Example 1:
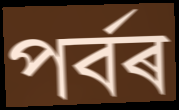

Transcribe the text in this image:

পৰ্বৰ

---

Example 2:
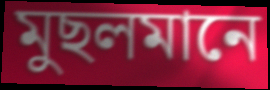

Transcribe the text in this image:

মুছলমানে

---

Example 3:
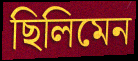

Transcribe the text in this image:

ছিলিমেন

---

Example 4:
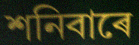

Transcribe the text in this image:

শনিবাৰে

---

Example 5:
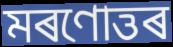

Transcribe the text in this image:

মৰণোত্তৰ